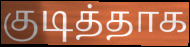
குடித்தாக